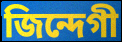
জিন্দেগী